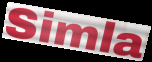
Simla